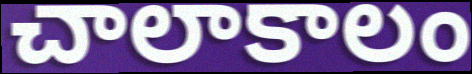
చాలాకాలం